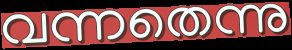
വന്നതെന്നു